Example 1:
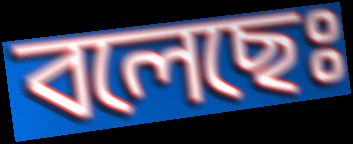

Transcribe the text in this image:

বলেছেঃ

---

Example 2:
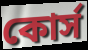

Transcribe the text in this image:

কোর্স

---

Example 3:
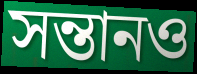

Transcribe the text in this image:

সন্তানও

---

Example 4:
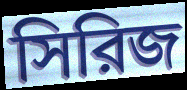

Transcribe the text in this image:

সিরিজ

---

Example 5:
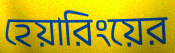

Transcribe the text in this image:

হেয়ারিংয়ের